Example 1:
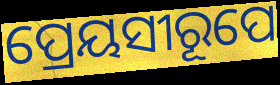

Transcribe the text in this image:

ପ୍ରେୟସୀରୂପେ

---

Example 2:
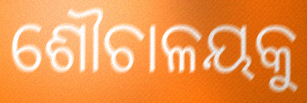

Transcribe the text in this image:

ଶୌଚାଳୟକୁ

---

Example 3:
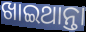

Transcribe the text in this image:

ଖାଇଥାନ୍ତା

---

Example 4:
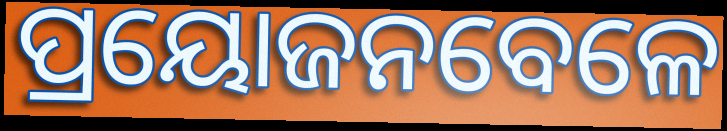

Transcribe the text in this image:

ପ୍ରୟୋଜନବେଳେ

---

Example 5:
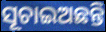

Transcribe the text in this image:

ସୂଚାଇଅଛନ୍ତି